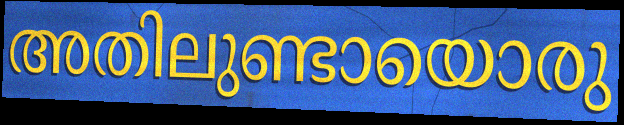
അതിലുണ്ടായൊരു